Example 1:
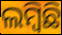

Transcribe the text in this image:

ଲମ୍ବିଛି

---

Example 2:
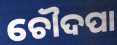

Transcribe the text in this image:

ଚୌଦପା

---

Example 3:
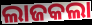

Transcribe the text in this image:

ଲାଜକଲା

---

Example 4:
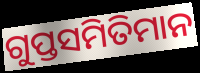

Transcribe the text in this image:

ଗୁପ୍ତସମିତିମାନ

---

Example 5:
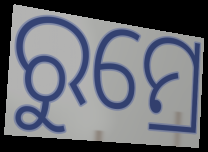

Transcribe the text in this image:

ରୁମ୍ରେ